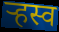
र्‍हस्व